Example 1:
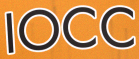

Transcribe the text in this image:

IOCC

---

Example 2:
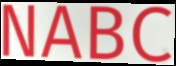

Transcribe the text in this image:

NABC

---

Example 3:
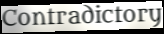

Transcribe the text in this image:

Contradictory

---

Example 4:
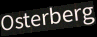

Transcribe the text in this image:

Osterberg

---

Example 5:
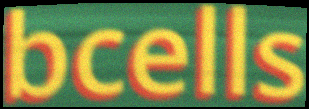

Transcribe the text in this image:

bcells